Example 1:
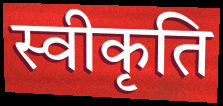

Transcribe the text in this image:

स्‍वीकृति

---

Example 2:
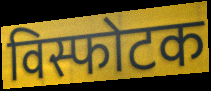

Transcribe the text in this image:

विस्फोटक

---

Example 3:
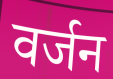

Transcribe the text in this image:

वर्जन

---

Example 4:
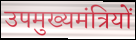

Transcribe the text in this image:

उपमुख्यमंत्रियों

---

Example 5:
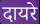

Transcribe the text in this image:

दायरे